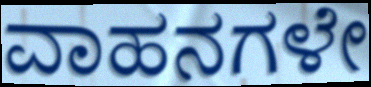
ವಾಹನಗಳೇ